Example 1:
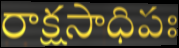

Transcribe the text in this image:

రాక్షసాధిపః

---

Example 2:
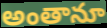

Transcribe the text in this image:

అంతానూ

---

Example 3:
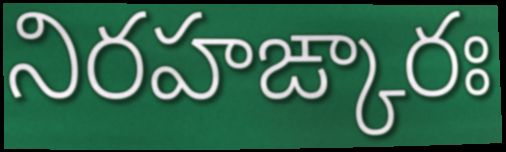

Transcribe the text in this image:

నిరహఙ్కారః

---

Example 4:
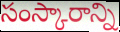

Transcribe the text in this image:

సంస్కారాన్ని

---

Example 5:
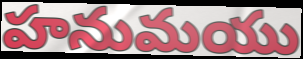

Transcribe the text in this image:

హనుమయు